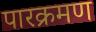
पारक्रमण